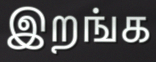
இறங்க